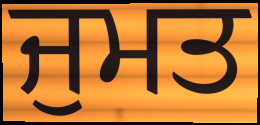
ਜੁਮਤ